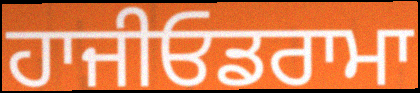
ਹਾਜੀਓਡਰਾਮਾ